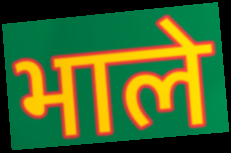
भाले